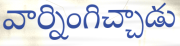
వార్నింగిచ్చాడు